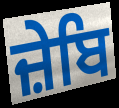
ਜ਼ੇਬਿ